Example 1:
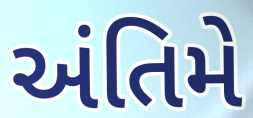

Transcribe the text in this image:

અંતિમે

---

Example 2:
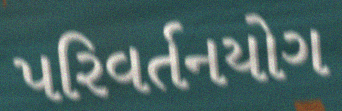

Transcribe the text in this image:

પરિવર્તનયોગ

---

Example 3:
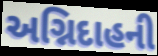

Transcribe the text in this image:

અગ્નિદાહની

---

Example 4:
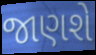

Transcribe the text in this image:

જાણશે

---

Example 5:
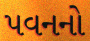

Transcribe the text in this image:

પવનનો